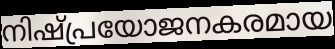
നിഷ്പ്രയോജനകരമായ